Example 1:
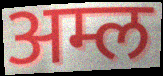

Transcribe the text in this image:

अम्ल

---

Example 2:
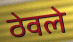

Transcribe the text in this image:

ठेवले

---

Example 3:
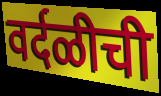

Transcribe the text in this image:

वर्दळीची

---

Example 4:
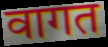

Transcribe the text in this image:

वागत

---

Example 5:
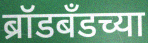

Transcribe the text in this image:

ब्रॉडबँडच्या